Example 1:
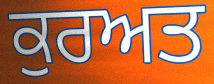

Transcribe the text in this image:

ਕੁਰਅਤ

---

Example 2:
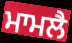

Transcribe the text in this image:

ਮਾਮਲੈ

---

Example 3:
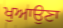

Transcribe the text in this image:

ਖੁਆਉਣਾ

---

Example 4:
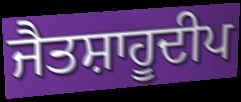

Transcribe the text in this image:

ਜੈਤਸ਼ਾਹੂਦੀਪ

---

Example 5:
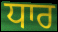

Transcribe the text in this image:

ਧਾਰ